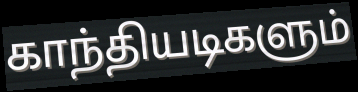
காந்தியடிகளும்